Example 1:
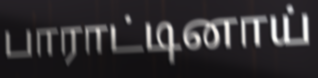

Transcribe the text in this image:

பாராட்டினாய்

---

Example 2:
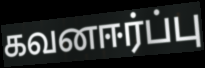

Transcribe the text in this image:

கவனஈர்ப்பு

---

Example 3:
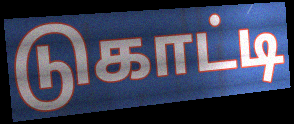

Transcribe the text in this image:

டுகாட்டி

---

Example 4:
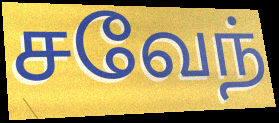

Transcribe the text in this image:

சவேந்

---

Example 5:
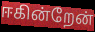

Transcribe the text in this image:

ஈகின்றேன்